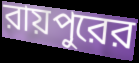
রায়পুরের